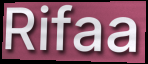
Rifaa